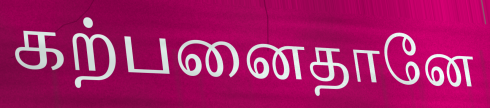
கற்பனைதானே